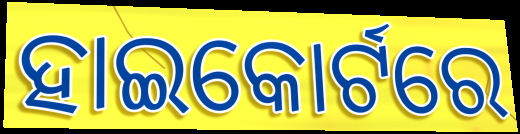
ହାଇକୋର୍ଟରେ